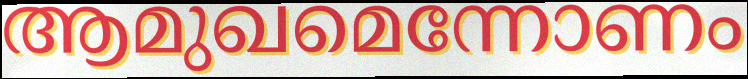
ആമുഖമെന്നോണം